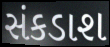
સંકડાશ